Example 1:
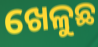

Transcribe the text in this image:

ଖେଳୁଛ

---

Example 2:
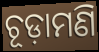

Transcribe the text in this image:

ଚୂଡ଼ାମଣି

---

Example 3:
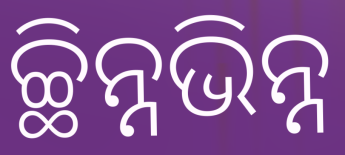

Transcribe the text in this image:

ଚ୍ଛିନ୍ନଭିନ୍ନ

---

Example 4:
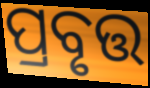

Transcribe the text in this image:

ପ୍ରବୃତ୍ତ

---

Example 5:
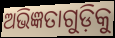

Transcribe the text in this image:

ଅଭିଜ୍ଞତାଗୁଡ଼ିକୁ